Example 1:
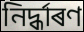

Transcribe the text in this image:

নিৰ্দ্ধাৰণ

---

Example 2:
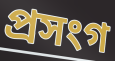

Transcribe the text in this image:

প্ৰসংগ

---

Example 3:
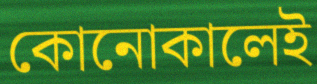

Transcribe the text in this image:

কোনোকালেই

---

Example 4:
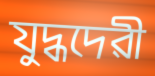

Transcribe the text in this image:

যুদ্ধদেৱী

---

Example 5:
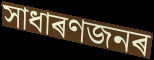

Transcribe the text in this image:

সাধাৰণজনৰ